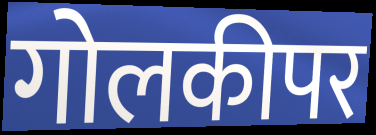
गोलकीपर